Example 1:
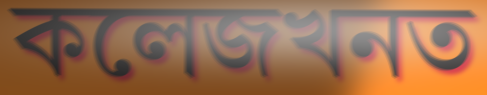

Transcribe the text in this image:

কলেজখনত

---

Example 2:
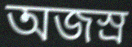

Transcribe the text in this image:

অজস্ৰ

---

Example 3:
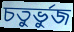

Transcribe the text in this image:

চতুৰ্ভুজ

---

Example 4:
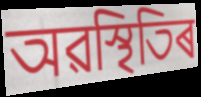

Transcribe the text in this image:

অৱস্থিতিৰ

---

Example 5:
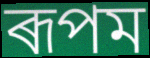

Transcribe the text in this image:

ৰূপম